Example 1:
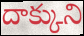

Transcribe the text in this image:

దాక్కుని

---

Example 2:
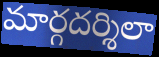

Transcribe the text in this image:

మార్గదర్శిలా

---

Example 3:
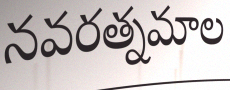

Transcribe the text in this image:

నవరత్నమాల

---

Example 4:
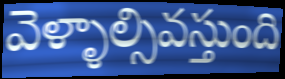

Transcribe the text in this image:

వెళ్ళాల్సివస్తుంది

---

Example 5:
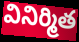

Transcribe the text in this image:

వినిర్మిత